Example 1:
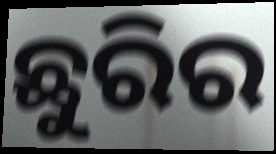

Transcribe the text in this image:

ଛୁରିର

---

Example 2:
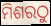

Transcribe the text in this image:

ମିଶରଠୁ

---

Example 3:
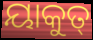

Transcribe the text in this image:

ୟାକୁତ୍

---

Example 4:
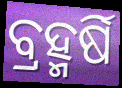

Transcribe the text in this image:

ବ୍ରହ୍ମର୍ଷି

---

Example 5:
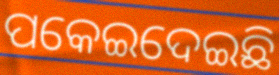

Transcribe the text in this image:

ପକେଇଦେଇଛି